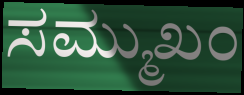
ಸಮ್ಮುಖಂ